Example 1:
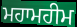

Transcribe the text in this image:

ਮਹਾਮਹੀਮ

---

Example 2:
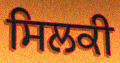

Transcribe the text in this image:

ਸਿਲਕੀ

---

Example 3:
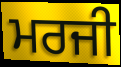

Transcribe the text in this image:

ਮਰਜੀ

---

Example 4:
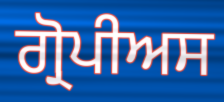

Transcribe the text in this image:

ਗ੍ਰੋਪੀਅਸ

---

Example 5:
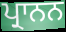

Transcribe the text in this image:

ਪ੍ਰਾਨਨ